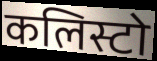
कलिस्टो